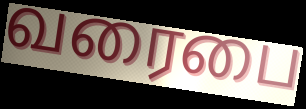
வரைபை